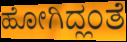
ಹೋಗಿದ್ಲಂತೆ